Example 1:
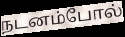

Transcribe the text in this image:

நடனம்போல்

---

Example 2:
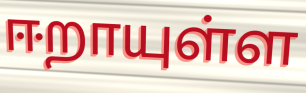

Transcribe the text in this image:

ஈறாயுள்ள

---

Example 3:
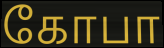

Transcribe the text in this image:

கோபா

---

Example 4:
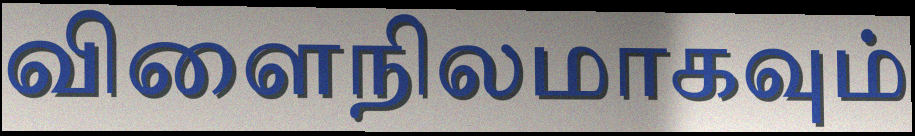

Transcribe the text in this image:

விளைநிலமாகவும்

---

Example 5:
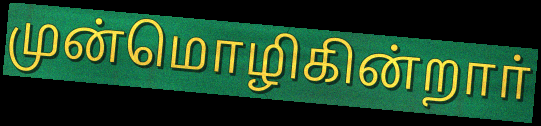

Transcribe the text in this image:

முன்மொழிகின்றார்